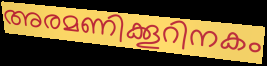
അരമണിക്കൂറിനകം